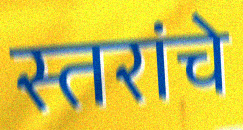
स्तरांचे